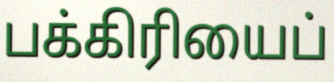
பக்கிரியைப்